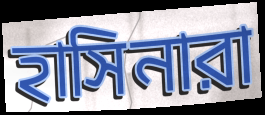
হাসিনারা